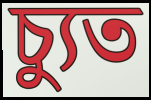
চ্যুত